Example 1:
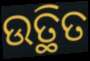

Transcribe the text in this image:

ଉତ୍ଥିତ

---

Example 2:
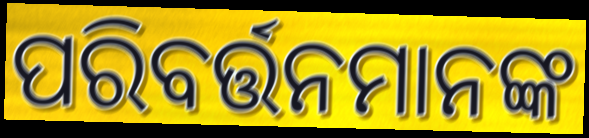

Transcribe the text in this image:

ପରିବର୍ତ୍ତନମାନଙ୍କ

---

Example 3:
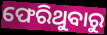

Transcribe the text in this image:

ଫେରିଥୁବାରୁ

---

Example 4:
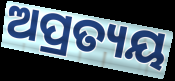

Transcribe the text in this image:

ଅପ୍ରତ୍ୟୟ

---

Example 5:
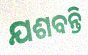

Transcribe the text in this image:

ଯଶବନ୍ତି